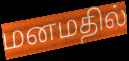
மனமதில்